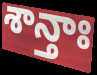
శాన్తాః